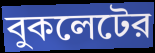
বুকলেটের